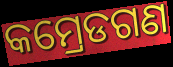
କମ୍ରେଡଗଣ